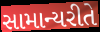
સામાન્યરીતે